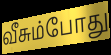
வீசும்போது